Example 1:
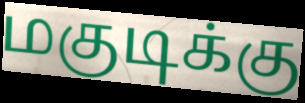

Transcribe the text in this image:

மகுடிக்கு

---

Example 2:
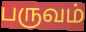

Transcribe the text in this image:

பருவம்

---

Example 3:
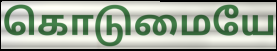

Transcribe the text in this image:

கொடுமையே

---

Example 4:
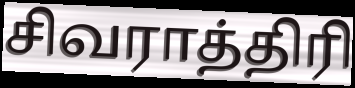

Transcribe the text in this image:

சிவராத்திரி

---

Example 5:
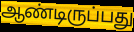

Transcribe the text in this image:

ஆண்டிருப்பது